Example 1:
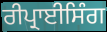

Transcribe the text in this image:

ਰੀਪ੍ਰਾਈਸਿੰਗ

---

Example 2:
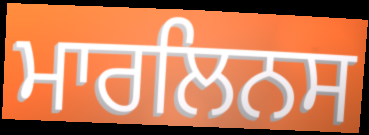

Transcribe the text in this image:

ਮਾਰਲਿਨਸ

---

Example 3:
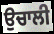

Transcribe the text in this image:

ਉਚਾਲੀ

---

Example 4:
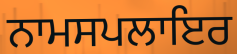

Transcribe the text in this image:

ਨਾਮਸਪਲਾਇਰ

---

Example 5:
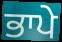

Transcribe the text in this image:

ਭਾਪੇ